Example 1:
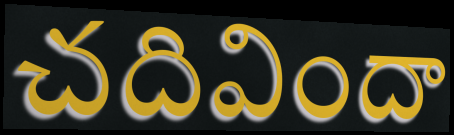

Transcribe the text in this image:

చదివిందా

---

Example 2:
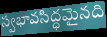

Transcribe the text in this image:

స్వభావసిద్ధమైనది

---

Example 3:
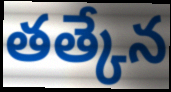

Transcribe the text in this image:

తత్కేన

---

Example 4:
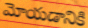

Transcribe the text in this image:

మోయడానికి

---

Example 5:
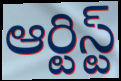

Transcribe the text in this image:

ఆర్టిస్ట్